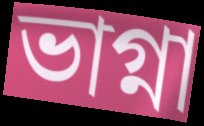
ভাগ্না